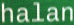
halan